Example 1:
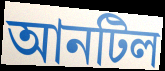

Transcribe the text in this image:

আনটিল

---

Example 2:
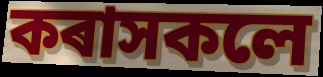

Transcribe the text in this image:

কৰাসকলে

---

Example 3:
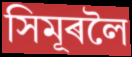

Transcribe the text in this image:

সিমূৰলৈ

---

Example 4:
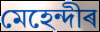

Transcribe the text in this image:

মেহেন্দীৰ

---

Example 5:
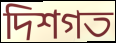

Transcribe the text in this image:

দিশগত